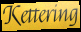
Kettering